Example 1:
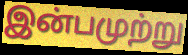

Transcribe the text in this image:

இன்பமுற்று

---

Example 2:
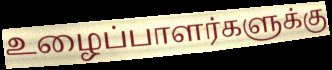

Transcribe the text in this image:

உழைப்பாளர்களுக்கு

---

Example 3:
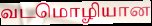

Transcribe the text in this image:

வடமொழியான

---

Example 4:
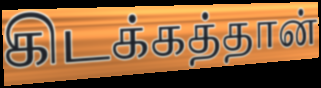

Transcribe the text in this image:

கிடக்கத்தான்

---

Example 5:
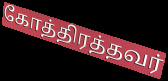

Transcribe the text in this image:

கோத்திரத்தவர்